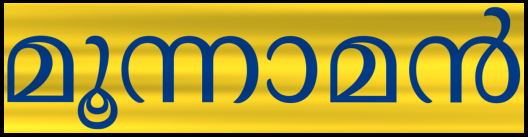
മൂന്നാമൻ